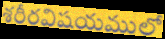
శరీరవిషయములో